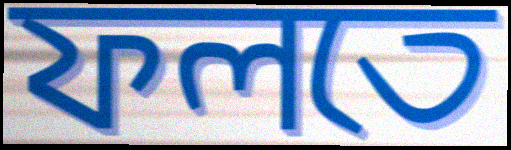
ফলতে